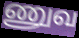
ணுவ